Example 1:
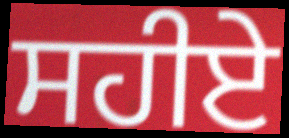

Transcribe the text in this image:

ਸਹੀਏ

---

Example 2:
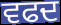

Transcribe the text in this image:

ਵਫਦ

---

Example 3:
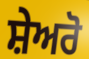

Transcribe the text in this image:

ਸ਼ੇਅਰੋ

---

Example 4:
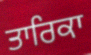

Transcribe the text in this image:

ਤਾਰਿਕਾ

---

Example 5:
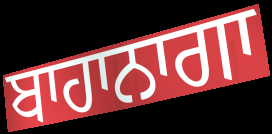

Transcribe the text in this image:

ਬਾਹਾਨਾਗਾ